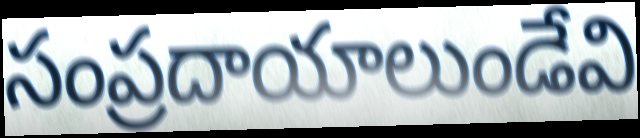
సంప్రదాయాలుండేవి